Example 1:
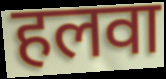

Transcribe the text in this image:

हलवा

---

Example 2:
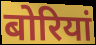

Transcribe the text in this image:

बोरियां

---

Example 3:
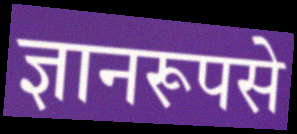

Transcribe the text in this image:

ज्ञानरूपसे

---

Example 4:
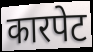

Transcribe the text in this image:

कारपेट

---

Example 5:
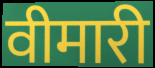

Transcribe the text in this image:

वीमारी